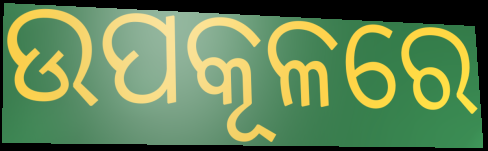
ଉପକୂଳରେ